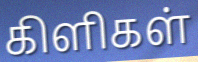
கிளிகள்